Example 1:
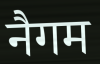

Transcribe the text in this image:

नैगम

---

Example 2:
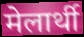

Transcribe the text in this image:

मेलार्थी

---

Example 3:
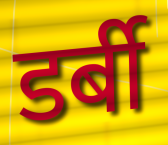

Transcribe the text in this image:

डर्बी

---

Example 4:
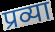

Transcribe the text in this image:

प्रव्या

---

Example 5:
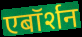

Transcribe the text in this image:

एबॉर्शन